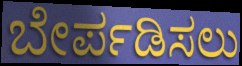
ಬೇರ್ಪಡಿಸಲು